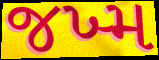
જખ્મ